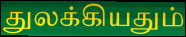
துலக்கியதும்